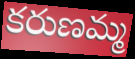
కరుణమ్మ